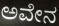
ಅವೇನ